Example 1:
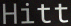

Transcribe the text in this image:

Hitt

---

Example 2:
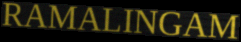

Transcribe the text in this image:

RAMALINGAM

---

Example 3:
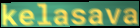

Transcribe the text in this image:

kelasava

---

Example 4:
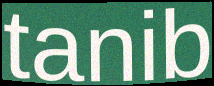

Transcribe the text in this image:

tanib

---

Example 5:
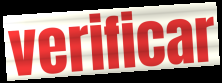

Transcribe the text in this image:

verificar